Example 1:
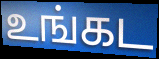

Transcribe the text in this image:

உங்கட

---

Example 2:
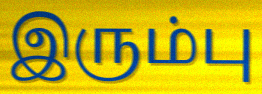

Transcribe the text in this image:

இரும்பு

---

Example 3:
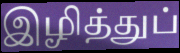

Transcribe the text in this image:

இழித்துப்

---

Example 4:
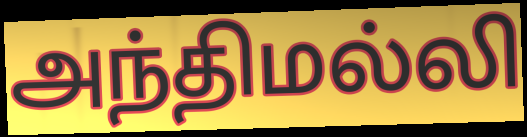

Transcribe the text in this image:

அந்திமல்லி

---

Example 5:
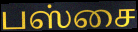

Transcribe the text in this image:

பஸ்சை